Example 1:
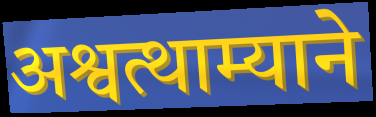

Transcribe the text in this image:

अश्वत्थाम्याने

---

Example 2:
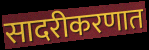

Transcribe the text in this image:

सादरीकरणात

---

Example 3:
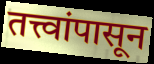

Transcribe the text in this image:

तत्त्वांपासून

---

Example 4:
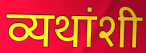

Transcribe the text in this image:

व्यथांशी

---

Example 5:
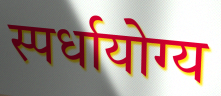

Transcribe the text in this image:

स्पर्धायोग्य